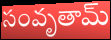
సంవృతామ్